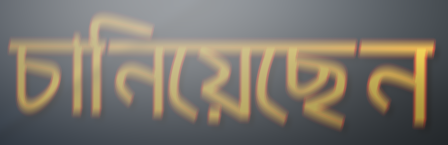
চানিয়েছেন